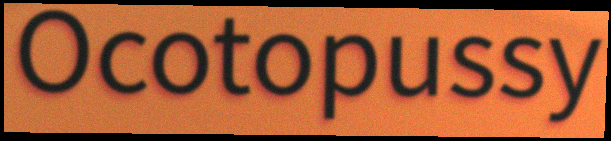
Ocotopussy